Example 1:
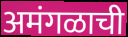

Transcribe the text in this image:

अमंगळाची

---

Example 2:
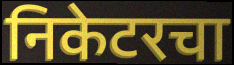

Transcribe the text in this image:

निकेटरचा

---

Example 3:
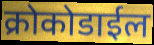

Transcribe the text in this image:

क्रोकोडाईल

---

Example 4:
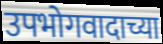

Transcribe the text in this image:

उपभोगवादाच्या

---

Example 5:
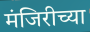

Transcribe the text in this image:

मंजिरीच्या